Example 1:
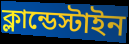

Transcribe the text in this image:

ক্লান্ডেস্টাইন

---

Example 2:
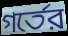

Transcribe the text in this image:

গর্তের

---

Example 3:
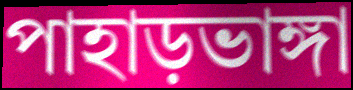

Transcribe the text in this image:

পাহাড়ভাঙ্গা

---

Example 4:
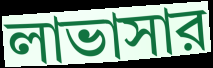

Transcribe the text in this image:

লাভাসার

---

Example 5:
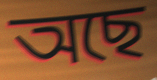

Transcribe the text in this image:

অছে